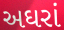
અઘરાં